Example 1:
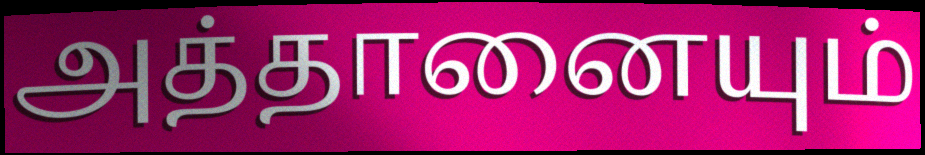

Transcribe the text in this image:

அத்தானையும்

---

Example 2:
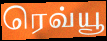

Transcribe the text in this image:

ரெவ்யூ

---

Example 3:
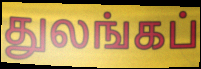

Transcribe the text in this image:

துலங்கப்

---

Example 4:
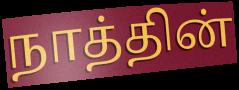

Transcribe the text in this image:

நாத்தின்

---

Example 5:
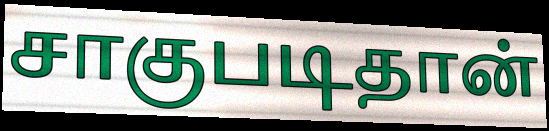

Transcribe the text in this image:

சாகுபடிதான்